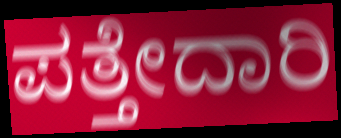
ಪತ್ತೇದಾರಿ